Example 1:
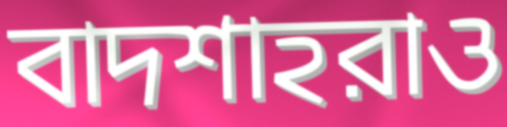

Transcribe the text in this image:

বাদশাহরাও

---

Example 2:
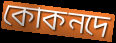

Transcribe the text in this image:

কোকনদে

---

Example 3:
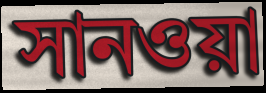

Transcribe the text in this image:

সানওয়া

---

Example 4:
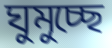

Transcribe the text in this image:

ঘুমুচ্ছে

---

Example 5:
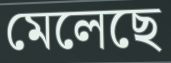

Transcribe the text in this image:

মেলেছে